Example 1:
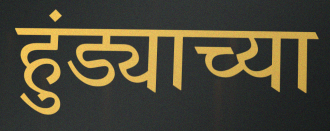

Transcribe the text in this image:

हुंड्याच्या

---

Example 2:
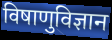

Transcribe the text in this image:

विषाणुविज्ञान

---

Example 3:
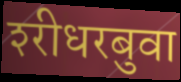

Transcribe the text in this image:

श्रीधरबुवा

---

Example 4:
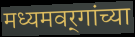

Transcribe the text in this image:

मध्यमवर्गांच्या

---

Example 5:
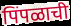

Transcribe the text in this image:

पिंपळाची